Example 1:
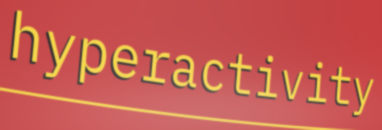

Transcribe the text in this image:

hyperactivity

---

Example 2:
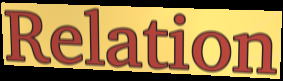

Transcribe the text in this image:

Relation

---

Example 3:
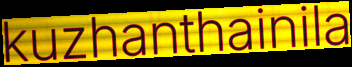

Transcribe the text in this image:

kuzhanthainila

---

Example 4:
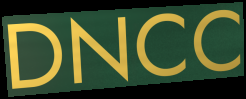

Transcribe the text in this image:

DNCC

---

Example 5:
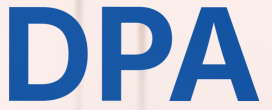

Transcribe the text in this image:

DPA